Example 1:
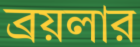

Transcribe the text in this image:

ব্রয়লার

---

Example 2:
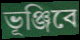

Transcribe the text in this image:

ভূঞ্জিবে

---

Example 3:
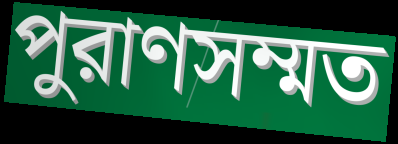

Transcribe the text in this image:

পুরাণসম্মত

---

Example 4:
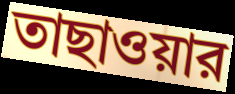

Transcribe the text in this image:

তাছাওয়ার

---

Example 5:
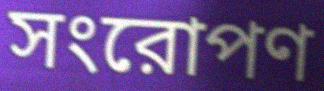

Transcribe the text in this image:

সংরোপণ